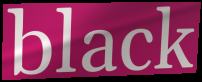
black